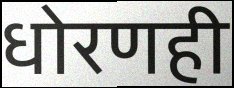
धोरणही